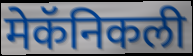
मेकॅनिकली